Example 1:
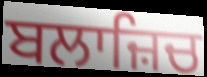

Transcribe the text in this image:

ਬਲਾਜ਼ਿਚ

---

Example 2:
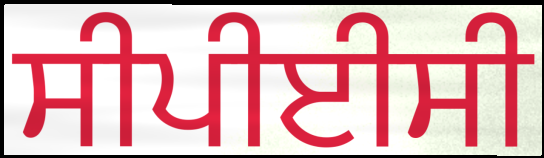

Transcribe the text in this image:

ਸੀਪੀਈਸੀ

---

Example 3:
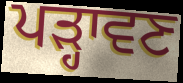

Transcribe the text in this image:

ਪੜ੍ਹਾਵਣ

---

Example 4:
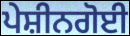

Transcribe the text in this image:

ਪੇਸ਼ੀਨਗੋਈ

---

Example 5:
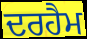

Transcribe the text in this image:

ਦਰਹੈਮ